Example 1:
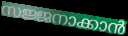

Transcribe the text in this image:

സജ്ജനാക്കാൻ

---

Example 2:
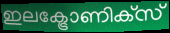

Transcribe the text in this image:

ഇലക്ട്രോണിക്‌സ്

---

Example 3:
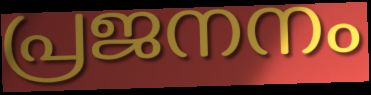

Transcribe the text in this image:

പ്രജനനം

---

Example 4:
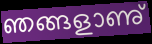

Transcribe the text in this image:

ഞങ്ങളാണു്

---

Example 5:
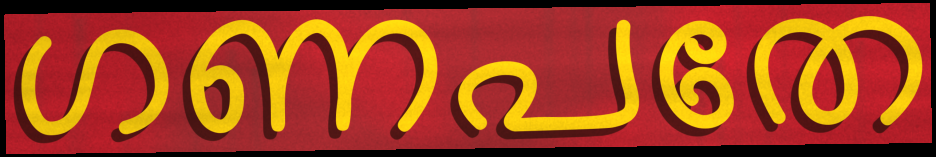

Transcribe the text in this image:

ഗണപതേ